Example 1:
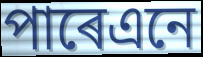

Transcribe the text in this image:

পাৰেএনে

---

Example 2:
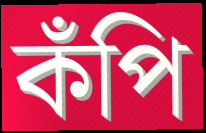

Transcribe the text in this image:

কঁপি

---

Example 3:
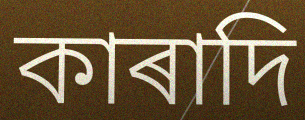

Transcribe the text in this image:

কাৰাদি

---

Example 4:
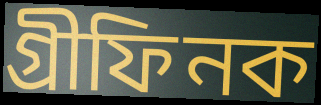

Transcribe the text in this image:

গ্ৰীফিনক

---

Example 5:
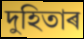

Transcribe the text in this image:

দুহিতাৰ